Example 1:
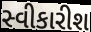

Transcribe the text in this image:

સ્વીકારીશ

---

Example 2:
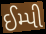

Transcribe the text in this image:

ઈમ્પી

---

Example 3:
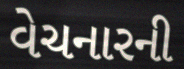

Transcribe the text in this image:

વેચનારની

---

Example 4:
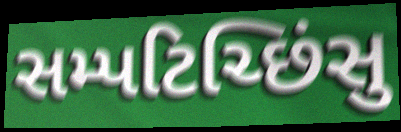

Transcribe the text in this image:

સમ્પટિચ્છિંસુ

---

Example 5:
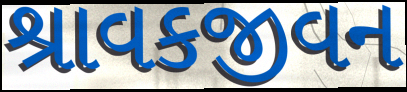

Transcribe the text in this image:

શ્રાવકજીવન